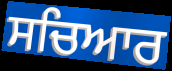
ਸਚਿਆਰ